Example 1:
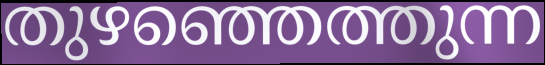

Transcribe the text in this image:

തുഴഞ്ഞെത്തുന്ന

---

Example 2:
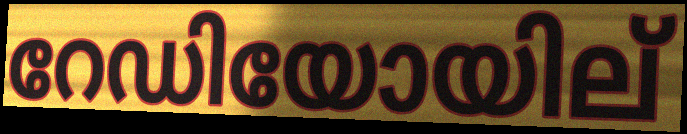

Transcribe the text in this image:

റേഡിയോയില്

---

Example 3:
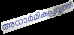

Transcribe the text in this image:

അധാർമികപ്രവൃത്തി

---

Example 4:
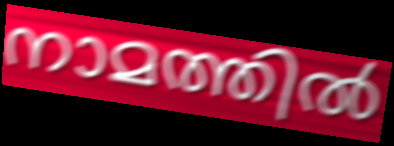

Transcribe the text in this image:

നാമത്തിൽ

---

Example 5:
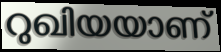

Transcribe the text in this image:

റുഖിയയാണ്